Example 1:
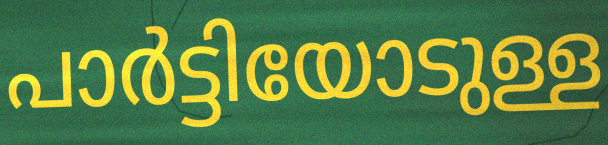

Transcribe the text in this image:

പാർട്ടിയോടുള്ള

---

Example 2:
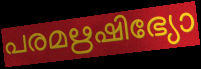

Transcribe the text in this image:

പരമഋഷിഭ്യോ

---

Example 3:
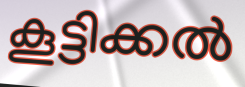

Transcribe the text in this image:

കൂട്ടിക്കൽ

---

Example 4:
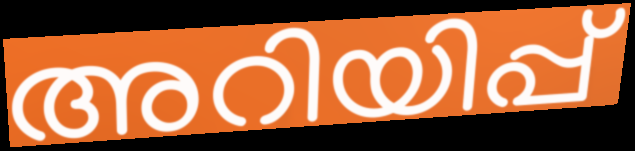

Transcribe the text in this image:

അറിയിപ്പ്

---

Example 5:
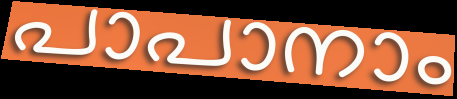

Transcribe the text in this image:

പാപാനാം